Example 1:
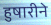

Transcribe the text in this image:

हुषारीने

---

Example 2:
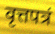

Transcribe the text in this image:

वृत्तपत्रं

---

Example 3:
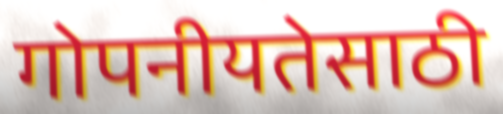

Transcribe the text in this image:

गोपनीयतेसाठी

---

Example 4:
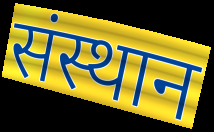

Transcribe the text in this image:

संस्थान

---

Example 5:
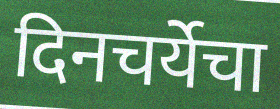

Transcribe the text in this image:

दिनचर्येचा